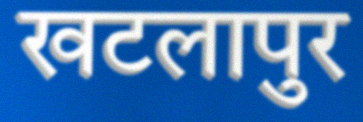
खटलापुर